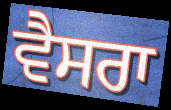
ਵੈਸਰਾ